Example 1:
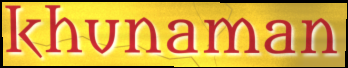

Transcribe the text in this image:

khunaman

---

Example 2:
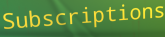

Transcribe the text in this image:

Subscriptions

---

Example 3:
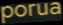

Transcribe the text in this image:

porua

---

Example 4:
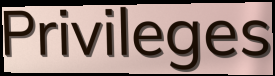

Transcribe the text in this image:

Privileges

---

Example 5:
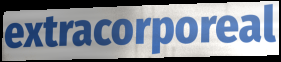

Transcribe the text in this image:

extracorporeal